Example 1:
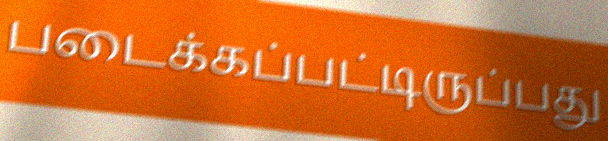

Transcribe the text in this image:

படைக்கப்பட்டிருப்பது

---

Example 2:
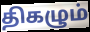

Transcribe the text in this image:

திகழும்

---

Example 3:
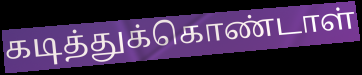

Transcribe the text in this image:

கடித்துக்கொண்டாள்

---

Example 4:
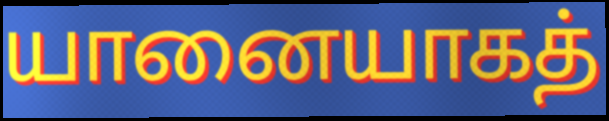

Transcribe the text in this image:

யானையாகத்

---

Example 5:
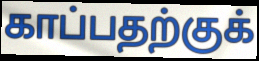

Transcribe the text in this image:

காப்பதற்குக்